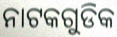
ନାଟକଗୁଡିକ